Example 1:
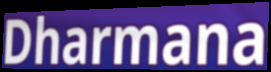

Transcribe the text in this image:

Dharmana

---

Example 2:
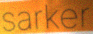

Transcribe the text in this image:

sarker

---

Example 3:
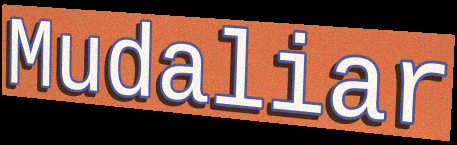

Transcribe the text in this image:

Mudaliar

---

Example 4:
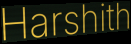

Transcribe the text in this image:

Harshith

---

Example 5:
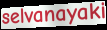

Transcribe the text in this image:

selvanayaki